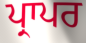
ਪ੍ਰਾਪਰ